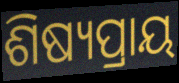
ଶିଷ୍ୟପ୍ରାୟ